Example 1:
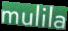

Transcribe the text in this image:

mulila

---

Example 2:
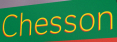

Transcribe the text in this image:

Chesson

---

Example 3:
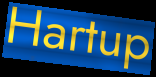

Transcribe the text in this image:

Hartup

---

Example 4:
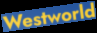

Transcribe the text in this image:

Westworld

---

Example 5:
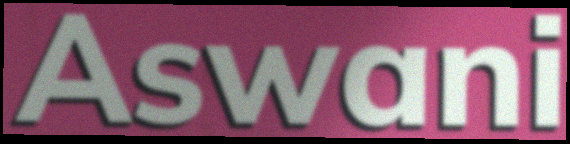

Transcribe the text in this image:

Aswani